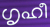
ഗൃഹീ